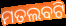
ମତଲବଟି